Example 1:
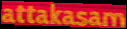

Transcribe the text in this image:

attakasam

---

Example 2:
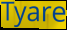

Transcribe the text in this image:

Tyare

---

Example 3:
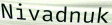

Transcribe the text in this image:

Nivadnuk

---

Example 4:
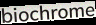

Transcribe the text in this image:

biochrome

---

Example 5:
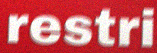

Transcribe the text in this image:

restri